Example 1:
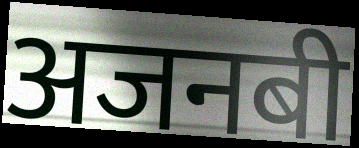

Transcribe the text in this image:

अजनबी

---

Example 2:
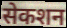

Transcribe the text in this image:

सेकशन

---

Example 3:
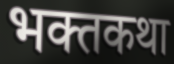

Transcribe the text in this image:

भक्तकथा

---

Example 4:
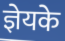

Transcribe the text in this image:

ज्ञेयके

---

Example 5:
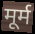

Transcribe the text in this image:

मूर्म